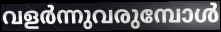
വളർന്നുവരുമ്പോൾ